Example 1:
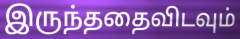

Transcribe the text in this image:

இருந்ததைவிடவும்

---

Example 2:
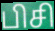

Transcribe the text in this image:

பிசி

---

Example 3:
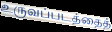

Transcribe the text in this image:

உருவப்படத்தைத்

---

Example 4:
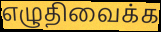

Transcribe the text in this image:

எழுதிவைக்க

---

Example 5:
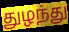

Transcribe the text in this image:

துழந்து